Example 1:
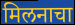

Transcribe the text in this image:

मिलनाचा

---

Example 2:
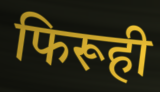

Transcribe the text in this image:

फिरूही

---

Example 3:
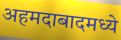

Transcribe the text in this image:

अहमदाबादमध्ये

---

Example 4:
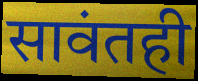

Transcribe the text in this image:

सावंतही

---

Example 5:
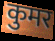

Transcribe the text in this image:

कुमर